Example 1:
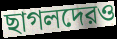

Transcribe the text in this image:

ছাগলদেরও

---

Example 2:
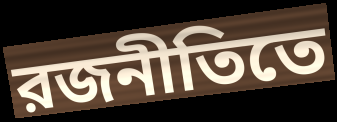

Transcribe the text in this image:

রজনীতিতে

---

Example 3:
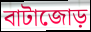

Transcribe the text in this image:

বাটাজোড়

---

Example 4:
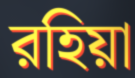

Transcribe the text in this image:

রহিয়া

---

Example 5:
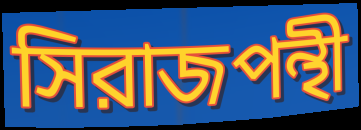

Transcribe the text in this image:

সিরাজপন্থী